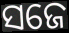
ସଜେ